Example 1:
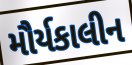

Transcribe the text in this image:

મૌર્યકાલીન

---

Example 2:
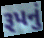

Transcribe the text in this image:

રૂપનું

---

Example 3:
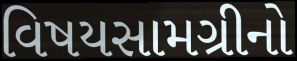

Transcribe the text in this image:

વિષયસામગ્રીનો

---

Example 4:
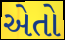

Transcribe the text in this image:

એતો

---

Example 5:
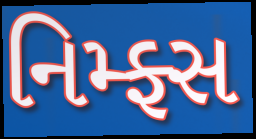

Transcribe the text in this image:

નિમ્ફ્સ